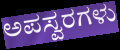
ಅಪಸ್ವರಗಳು